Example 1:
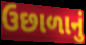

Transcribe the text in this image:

ઉછાળાનું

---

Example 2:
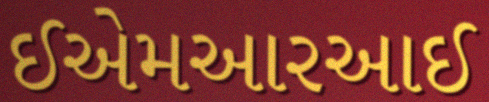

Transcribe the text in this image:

ઈએમઆરઆઈ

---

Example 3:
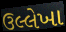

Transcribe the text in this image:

ઉલ્લેખા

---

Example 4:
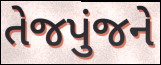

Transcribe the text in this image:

તેજપુંજને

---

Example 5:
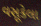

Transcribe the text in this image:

વસૂકેલા